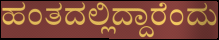
ಹಂತದಲ್ಲಿದ್ದಾರೆಂದು